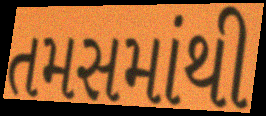
તમસમાંથી